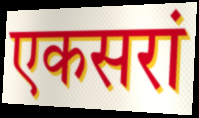
एकसरां